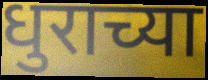
धुराच्या